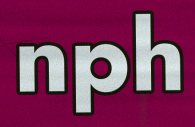
nph